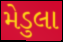
મેડુલા